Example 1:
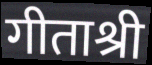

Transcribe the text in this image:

गीताश्री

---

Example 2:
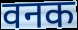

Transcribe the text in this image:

वनक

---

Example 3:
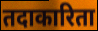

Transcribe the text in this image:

तदाकारिता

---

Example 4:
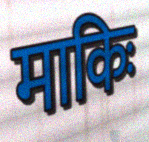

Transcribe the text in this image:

माकिः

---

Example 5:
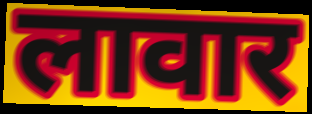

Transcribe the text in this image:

लावार